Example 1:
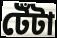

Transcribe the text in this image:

টেঁটা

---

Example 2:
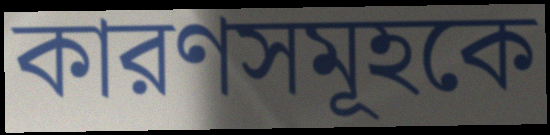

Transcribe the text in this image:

কারণসমূহকে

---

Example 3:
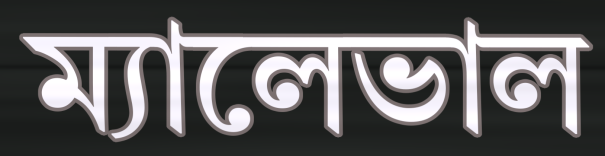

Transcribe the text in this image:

ম্যালেভাল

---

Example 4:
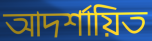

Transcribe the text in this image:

আদর্শায়িত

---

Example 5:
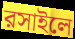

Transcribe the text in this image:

রসাইলে